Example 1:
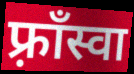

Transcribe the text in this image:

फ़्राँस्वा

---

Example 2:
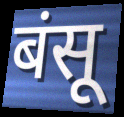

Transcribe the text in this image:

बंसू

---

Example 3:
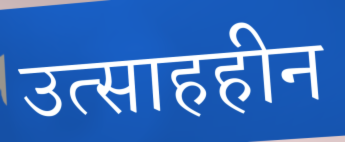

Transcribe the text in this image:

उत्साहहीन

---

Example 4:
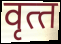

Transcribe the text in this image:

वृत्‍त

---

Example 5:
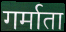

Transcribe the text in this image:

गर्माता